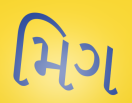
મિગ